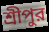
শ্রীপুর